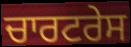
ਚਾਰਟਰੇਸ